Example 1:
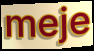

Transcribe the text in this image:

meje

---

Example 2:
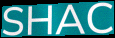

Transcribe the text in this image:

SHAC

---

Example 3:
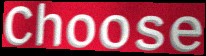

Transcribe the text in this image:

Choose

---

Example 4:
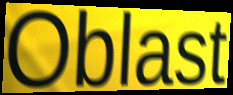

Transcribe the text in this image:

Oblast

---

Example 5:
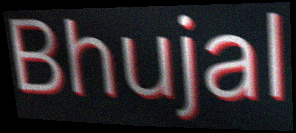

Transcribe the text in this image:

Bhujal